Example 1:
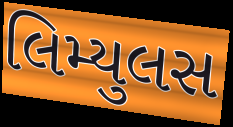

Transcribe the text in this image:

લિમ્યુલસ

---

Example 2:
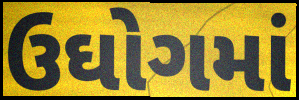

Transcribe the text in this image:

ઉઘોગમાં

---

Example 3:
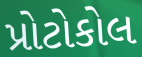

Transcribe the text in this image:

પ્રોટોકોલ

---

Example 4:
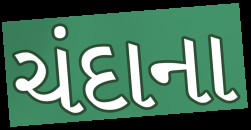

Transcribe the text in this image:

ચંદાના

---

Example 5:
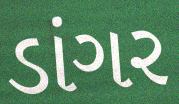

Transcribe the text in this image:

ડાંગર